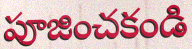
పూజించకండి